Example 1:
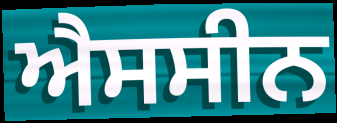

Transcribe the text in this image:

ਐਸਸੀਨ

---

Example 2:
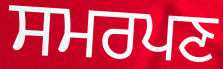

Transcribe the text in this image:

ਸਮਰਪਣ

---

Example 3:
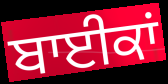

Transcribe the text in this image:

ਬਾਈਕਾਂ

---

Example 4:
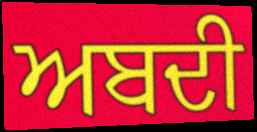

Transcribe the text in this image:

ਅਬਦੀ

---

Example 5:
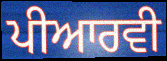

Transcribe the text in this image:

ਪੀਆਰਵੀ